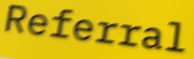
Referral